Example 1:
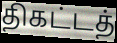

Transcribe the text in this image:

திகட்டத்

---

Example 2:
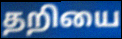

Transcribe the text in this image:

தறியை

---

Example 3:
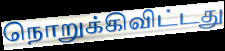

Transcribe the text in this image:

நொறுக்கிவிட்டது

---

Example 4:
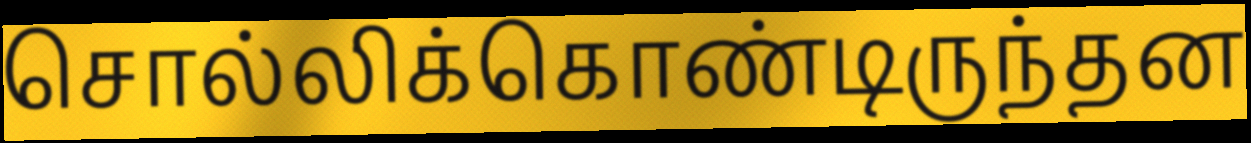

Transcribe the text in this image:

சொல்லிக்கொண்டிருந்தன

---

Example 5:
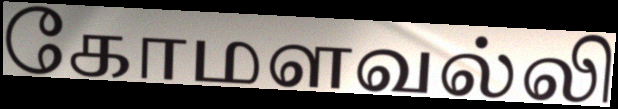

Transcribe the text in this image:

கோமளவல்லி